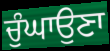
ਚੁੰਘਾਉਣਾ